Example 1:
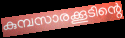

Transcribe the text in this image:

കുമ്പസാരക്കൂടിന്റെ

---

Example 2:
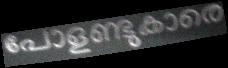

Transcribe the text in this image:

പോളണ്ടുകാരെ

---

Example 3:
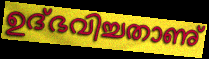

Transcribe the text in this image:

ഉദ്ഭവിച്ചതാണു്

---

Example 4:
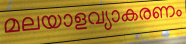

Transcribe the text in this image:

മലയാളവ്യാകരണം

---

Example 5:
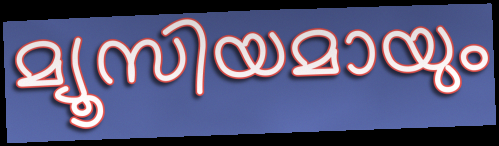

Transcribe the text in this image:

മ്യൂസിയമായും